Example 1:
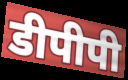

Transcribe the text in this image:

डीपीपी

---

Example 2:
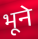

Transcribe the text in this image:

भूने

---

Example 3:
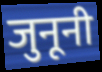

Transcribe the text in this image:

जुनूनी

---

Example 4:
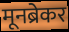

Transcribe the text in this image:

मूनब्रेकर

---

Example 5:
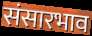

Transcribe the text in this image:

संसारभाव